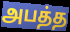
அபத்த